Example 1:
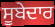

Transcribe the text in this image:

ਸੂਬੇਦਾਰ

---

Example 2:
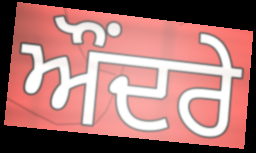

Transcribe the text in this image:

ਔਂਦਰੇ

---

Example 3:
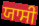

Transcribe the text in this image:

ਯਾਸੀ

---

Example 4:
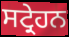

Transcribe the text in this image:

ਸਟ੍ਰੇਹਨ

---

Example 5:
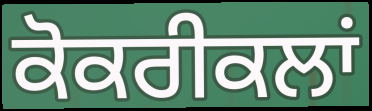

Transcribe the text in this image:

ਕੋਕਰੀਕਲਾਂ